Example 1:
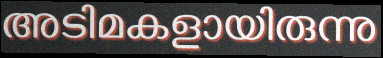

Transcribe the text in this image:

അടിമകളായിരുന്നു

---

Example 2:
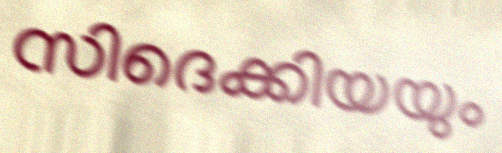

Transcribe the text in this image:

സിദെക്കിയയും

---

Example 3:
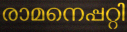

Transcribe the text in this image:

രാമനെപ്പറ്റി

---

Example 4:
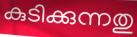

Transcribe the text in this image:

കുടിക്കുന്നതു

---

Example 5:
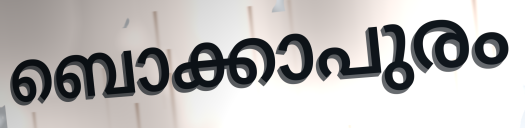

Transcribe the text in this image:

ബൊക്കാപുരം